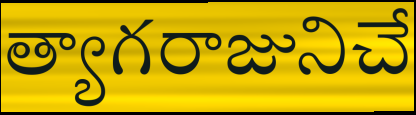
త్యాగరాజునిచే